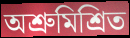
অশ্রুমিশ্রিত